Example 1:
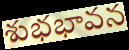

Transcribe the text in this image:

శుభభావన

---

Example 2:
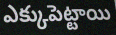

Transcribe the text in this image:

ఎక్కుపెట్టాయి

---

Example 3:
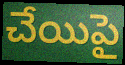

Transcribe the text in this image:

చేయిపై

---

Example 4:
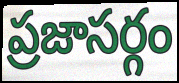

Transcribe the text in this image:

ప్రజాసర్గం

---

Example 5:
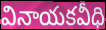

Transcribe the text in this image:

వినాయకవీధి